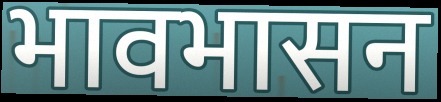
भावभासन